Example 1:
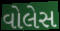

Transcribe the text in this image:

વોલેસ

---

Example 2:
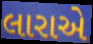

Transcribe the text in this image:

લારાએ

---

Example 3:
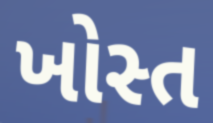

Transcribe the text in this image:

ખોસ્ત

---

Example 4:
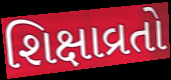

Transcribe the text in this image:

શિક્ષાવ્રતો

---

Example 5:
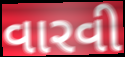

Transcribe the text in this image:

વારવી